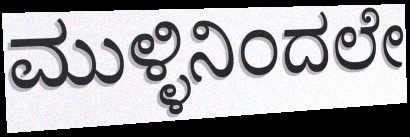
ಮುಳ್ಳಿನಿಂದಲೇ